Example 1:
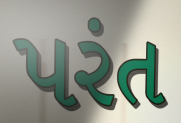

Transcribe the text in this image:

પરંત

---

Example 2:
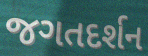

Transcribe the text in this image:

જગતદર્શન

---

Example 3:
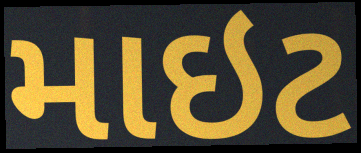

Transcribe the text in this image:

માઇટ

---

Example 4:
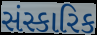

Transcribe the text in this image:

સંસ્કારિક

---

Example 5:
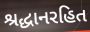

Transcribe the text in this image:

શ્રદ્ધાનરહિત